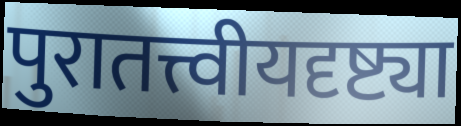
पुरातत्त्वीयदृष्ट्या